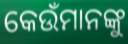
କେଉଁମାନଙ୍କୁ